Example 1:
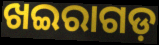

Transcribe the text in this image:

ଖଇରାଗଡ଼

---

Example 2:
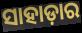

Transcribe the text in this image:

ସାହାଡ଼ାର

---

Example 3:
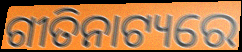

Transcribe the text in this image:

ଗୀତିନାଟ୍ୟରେ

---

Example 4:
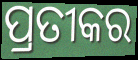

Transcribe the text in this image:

ପ୍ରତୀକର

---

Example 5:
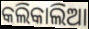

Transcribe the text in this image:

କଲିକାଲିଆ